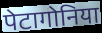
पेटागोनिया